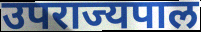
उपराज्यपाल